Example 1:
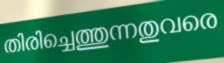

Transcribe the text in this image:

തിരിച്ചെത്തുന്നതുവരെ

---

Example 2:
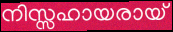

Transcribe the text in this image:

നിസ്സഹായരായ്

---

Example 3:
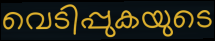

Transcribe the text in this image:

വെടിപ്പുകയുടെ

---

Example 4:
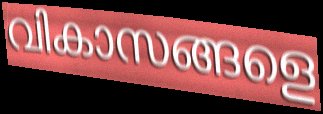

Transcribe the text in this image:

വികാസങ്ങളെ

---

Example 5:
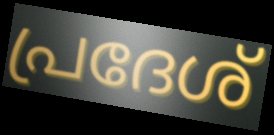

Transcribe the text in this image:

പ്രദേശ്